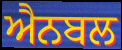
ਐਨਬਲ